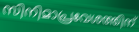
സിനിമാപ്രവേശത്തിന്